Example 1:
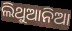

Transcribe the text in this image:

ଲିଥୁଆନିଆ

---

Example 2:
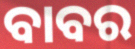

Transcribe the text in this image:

ବାବର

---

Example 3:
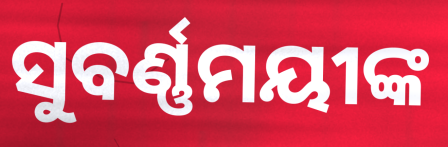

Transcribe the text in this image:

ସୁବର୍ଣ୍ଣମୟୀଙ୍କ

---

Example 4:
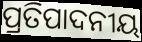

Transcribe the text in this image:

ପ୍ରତିପାଦନୀୟ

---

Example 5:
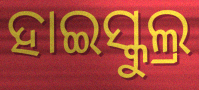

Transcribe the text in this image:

ହାଇସ୍କୁଲ୍ର